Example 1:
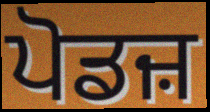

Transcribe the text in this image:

ਪੋਡਜ਼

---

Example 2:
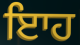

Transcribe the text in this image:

ਇਾਹ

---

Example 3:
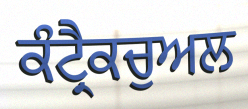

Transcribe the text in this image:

ਕੰਟ੍ਰੈਕਚੁਅਲ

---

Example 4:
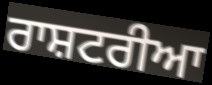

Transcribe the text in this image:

ਰਾਸ਼ਟਰੀਆ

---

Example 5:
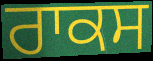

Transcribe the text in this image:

ਰਾਕਸ